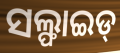
ସଲ୍ଫାଇଡ୍